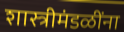
शास्त्रीमंडळींना